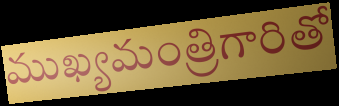
ముఖ్యమంత్రిగారితో